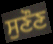
ਸੁਣੌਣ